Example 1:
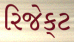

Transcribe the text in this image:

રિજેક્‌ટ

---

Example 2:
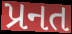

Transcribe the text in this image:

પ્રનત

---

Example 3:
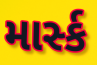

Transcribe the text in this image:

માર્સ્ક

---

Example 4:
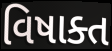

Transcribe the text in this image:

વિષાક્ત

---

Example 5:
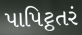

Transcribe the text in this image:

પાપિટ્ઠતરં